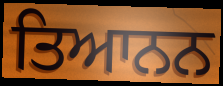
ਤਿਆਨਨ